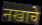
नखाचे